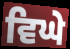
ਵਿਘੇ